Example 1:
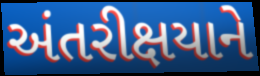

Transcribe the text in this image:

અંતરીક્ષયાને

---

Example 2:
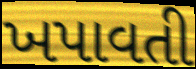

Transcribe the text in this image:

ખપાવતી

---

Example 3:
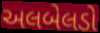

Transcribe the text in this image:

અલબેલડો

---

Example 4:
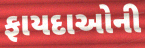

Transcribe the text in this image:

ફાયદાઓની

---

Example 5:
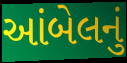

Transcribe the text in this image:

આંબેલનું